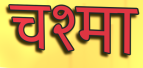
चश्मा